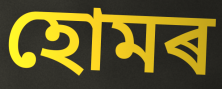
হোমৰ